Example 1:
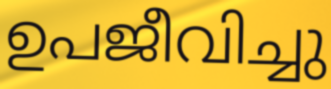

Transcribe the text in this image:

ഉപജീവിച്ചു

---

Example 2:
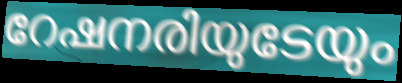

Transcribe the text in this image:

റേഷനരിയുടേയും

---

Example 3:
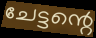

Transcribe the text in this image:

ചേട്ടന്റെ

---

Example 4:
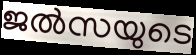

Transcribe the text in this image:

ജൽസയുടെ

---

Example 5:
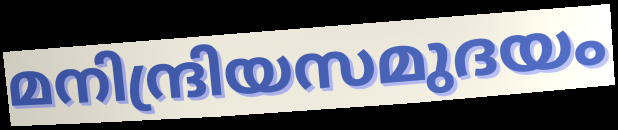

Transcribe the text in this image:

മനിന്ദ്രിയസമുദയം